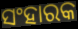
ସଂହାରକ